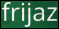
frijaz